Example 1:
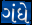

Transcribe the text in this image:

ગંધે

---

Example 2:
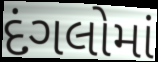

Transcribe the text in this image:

દંગલોમાં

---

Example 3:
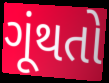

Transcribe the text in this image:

ગૂંથતો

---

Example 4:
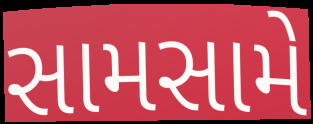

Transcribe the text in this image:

સામસામે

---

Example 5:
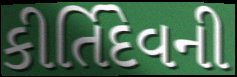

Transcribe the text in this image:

કીર્તિદેવની